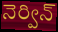
నెర్విన్